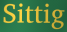
Sittig